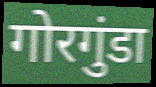
गोरगुंडा